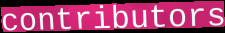
contributors